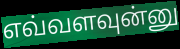
எவ்வளவுன்னு